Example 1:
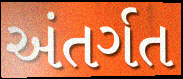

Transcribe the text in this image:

અંતર્ગત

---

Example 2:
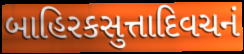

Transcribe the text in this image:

બાહિરકસુત્તાદિવચનં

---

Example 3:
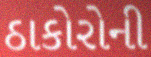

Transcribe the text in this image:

ઠાકોરોની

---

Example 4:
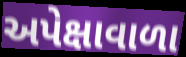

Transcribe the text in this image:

અપેક્ષાવાળા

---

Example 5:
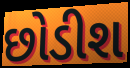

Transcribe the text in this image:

છોડીશ